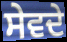
ਸੇਵਦੇ